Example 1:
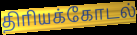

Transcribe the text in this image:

திரியக்கோடல்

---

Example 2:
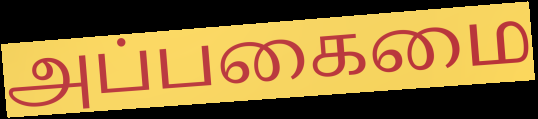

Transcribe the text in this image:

அப்பகைமை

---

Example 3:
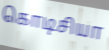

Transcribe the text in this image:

கொடிசியா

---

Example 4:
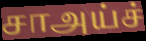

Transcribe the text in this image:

சாஅய்ச்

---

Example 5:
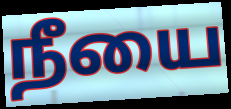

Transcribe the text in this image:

நீயை